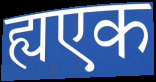
ह्यएक